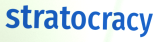
stratocracy